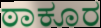
ಠಾಕೂರ